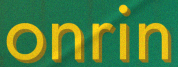
onrin